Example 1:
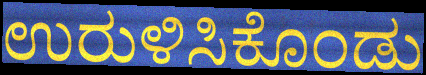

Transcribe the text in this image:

ಉರುಳಿಸಿಕೊಂಡು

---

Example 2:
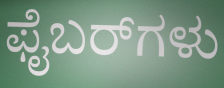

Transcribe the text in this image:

ಫೈಬರ್‌ಗಳು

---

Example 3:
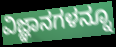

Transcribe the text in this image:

ವಿಜ್ಞಾನಗಳನ್ನೂ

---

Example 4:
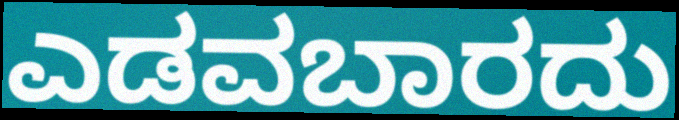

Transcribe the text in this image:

ಎಡವಬಾರದು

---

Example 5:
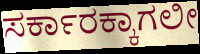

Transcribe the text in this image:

ಸರ್ಕಾರಕ್ಕಾಗಲೀ